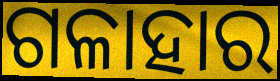
ଗଳାହାର